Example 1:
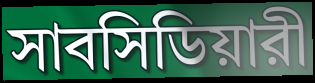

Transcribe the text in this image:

সাবসিডিয়ারী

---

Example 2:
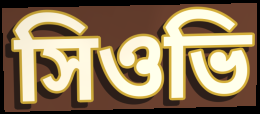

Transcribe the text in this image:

সিওভি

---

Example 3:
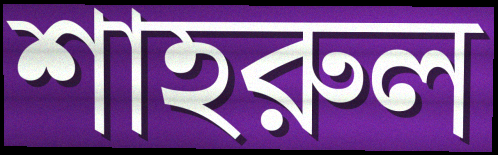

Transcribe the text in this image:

শাহরুল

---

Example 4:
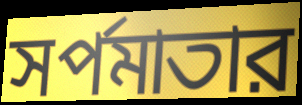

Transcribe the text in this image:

সর্পমাতার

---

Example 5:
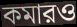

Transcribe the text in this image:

কমারও